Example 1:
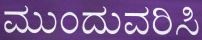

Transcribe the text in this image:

ಮುಂದುವರಿಸಿ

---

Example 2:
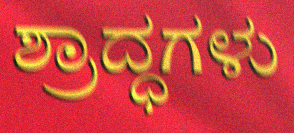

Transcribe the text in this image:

ಶ್ರಾದ್ಧಗಳು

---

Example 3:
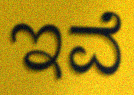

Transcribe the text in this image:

ಇವೆ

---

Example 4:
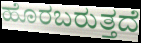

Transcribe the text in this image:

ಹೊರಬರುತ್ತದೆ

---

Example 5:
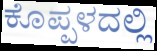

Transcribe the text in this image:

ಕೊಪ್ಪಳದಲ್ಲಿ